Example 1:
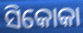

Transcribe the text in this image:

ସିକୋକା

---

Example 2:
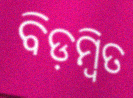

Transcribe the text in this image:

ବିଡ଼ମ୍ଵିତ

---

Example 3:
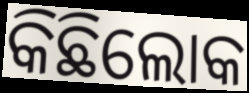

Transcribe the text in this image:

କିଛିଲୋକ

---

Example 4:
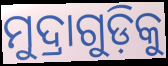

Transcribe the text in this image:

ମୁଦ୍ରାଗୁଡ଼ିକୁ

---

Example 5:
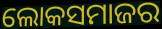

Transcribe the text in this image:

ଲୋକସମାଜର